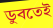
ডুবতেই